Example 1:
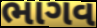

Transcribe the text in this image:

ભાગવ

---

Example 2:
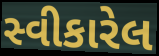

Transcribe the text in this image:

સ્વીકારેલ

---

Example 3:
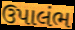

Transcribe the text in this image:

ઉપાલંભ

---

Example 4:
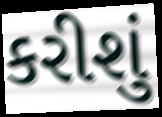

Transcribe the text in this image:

કરીશું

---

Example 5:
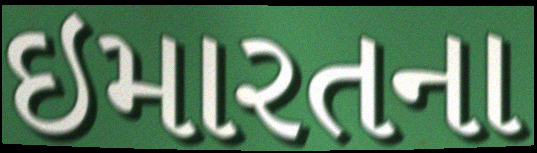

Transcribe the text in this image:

ઇમારતના